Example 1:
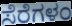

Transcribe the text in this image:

ಸೆರೆಗಳಂ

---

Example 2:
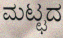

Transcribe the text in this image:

ಮಟ್ಟದ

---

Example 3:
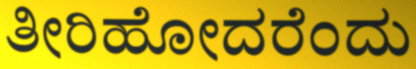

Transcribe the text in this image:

ತೀರಿಹೋದರೆಂದು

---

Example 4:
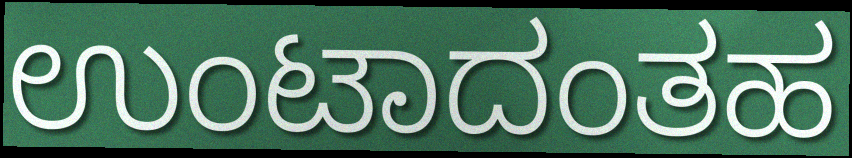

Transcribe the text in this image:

ಉಂಟಾದಂತಹ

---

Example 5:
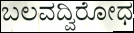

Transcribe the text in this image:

ಬಲವದ್ವಿರೋಧ